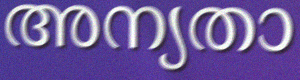
അന്യതാ